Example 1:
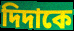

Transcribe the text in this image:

দিদাকে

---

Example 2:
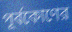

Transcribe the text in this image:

পূর্বকোণের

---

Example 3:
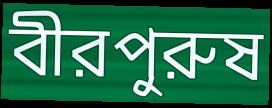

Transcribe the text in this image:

বীরপুরুষ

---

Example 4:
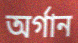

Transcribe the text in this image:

অর্গান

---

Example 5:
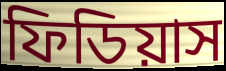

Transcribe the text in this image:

ফিডিয়াস